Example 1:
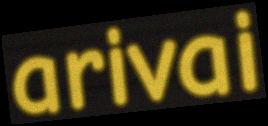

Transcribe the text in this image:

arivai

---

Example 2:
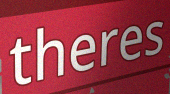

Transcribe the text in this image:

theres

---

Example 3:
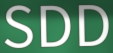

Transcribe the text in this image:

SDD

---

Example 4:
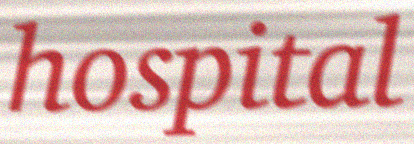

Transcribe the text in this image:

hospital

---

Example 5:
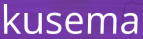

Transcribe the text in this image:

kusema